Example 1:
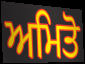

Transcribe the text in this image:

ਅਮਿਤੋ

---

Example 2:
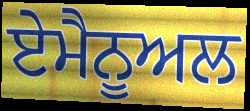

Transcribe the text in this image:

ਏਮੈਨੂਅਲ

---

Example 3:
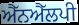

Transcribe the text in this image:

ਐੱਨਐੱਲਪੀ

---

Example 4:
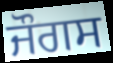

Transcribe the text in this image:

ਜੌਗਸ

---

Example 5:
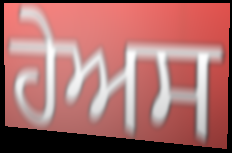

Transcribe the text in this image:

ਹੇਅਸ